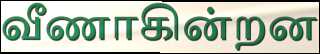
வீணாகின்றன